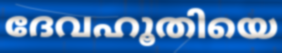
ദേവഹൂതിയെ